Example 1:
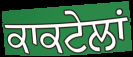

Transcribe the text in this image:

ਕਾਕਟੇਲਾਂ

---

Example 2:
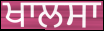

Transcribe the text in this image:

ਖਾਲਸਾ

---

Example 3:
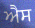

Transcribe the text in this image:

ਐਸ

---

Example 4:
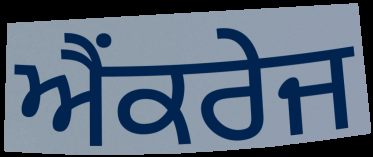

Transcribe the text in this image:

ਐਂਕਰੇਜ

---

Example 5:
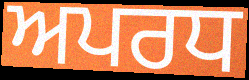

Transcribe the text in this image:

ਅਪਰਧ